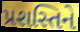
પ્રશસ્તિને